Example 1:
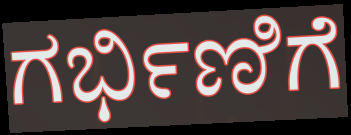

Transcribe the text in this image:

ಗರ್ಭಿಣಿಗೆ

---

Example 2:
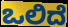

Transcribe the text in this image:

ಒಲಿದೆ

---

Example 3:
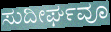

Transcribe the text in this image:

ಸುದೀರ್ಘವೂ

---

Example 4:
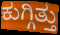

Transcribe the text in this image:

ಕುಗ್ಗಿತ್ತು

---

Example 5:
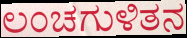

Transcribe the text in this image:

ಲಂಚಗುಳಿತನ